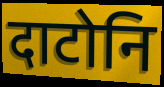
दाटोनि